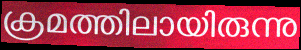
ക്രമത്തിലായിരുന്നു